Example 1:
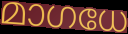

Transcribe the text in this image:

മാഗധേ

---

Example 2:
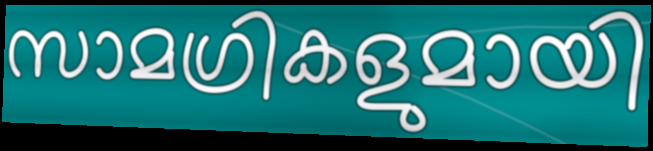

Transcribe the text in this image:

സാമഗ്രികളുമായി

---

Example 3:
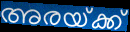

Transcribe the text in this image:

അരയ്‌ക്ക്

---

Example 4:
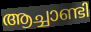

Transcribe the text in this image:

ആച്ചാണ്ടി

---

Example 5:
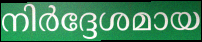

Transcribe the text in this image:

നിർദ്ദേശമായ